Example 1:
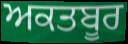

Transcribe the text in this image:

ਅਕਤਬੂਰ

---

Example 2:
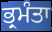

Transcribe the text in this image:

ਭ੍ਰਮੰਤਾ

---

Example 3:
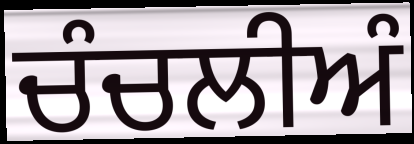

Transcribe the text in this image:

ਚੰਚਲੀਅੰ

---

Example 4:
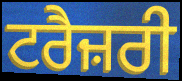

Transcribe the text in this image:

ਟਰੈਜ਼ਰੀ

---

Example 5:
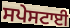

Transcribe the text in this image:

ਸਪੇਸਟਾਈ